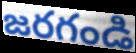
జరగండి